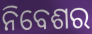
ନିବେଶର